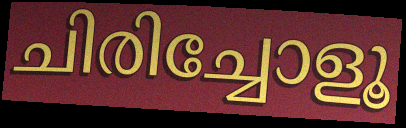
ചിരിച്ചോളൂ